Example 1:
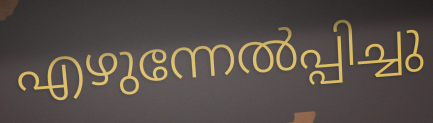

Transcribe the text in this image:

എഴുന്നേൽപ്പിച്ചു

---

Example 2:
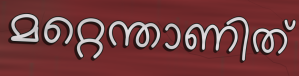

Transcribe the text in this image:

മറ്റെന്താണിത്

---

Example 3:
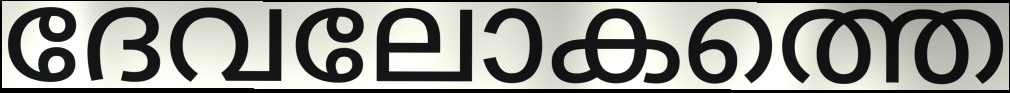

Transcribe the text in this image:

ദേവലോകത്തെ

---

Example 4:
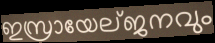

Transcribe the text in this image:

ഇസ്രായേല്ജനവും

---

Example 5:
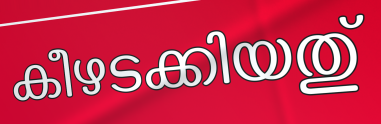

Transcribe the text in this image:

കീഴടക്കിയതു്